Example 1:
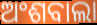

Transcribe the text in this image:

ଅଂଶବାଲା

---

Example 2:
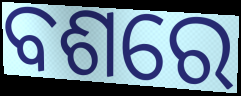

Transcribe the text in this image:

ବଶରେ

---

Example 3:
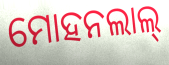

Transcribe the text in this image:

ମୋହନଲାଲ୍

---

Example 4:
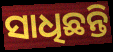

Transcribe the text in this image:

ସାଧିଛନ୍ତି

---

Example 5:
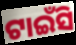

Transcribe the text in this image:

ଟାଇଁସି